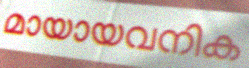
മായായവനിക